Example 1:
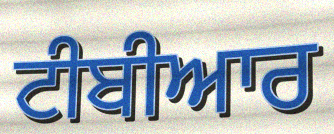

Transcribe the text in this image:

ਟੀਬੀਆਰ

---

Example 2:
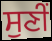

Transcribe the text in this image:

ਸੁਣੀਂ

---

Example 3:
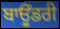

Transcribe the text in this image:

ਬਾਊਂਡਰੀ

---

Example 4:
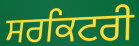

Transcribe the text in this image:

ਸਰਕਿਟਰੀ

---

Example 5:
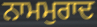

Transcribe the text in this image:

ਨਾਮਮੁਰਾਦ